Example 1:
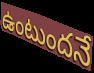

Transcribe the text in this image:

ఉంటుందనే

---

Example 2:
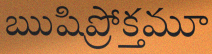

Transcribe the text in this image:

ఋషిప్రోక్తమూ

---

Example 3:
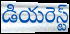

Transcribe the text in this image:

డియరెస్ట్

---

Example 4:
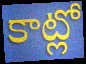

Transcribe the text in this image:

కాట్లో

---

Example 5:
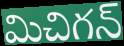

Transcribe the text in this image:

మిచిగన్